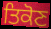
ਤਿਕੋਣ